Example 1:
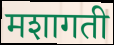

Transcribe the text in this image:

मशागती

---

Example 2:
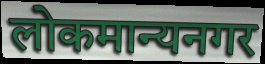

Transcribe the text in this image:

लोकमान्यनगर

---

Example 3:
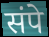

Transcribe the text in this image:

संपे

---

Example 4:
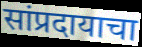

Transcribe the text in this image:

सांप्रदायाचा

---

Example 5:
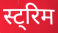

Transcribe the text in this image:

स्ट्रिम